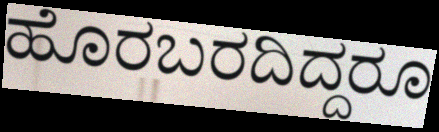
ಹೊರಬರದಿದ್ದರೂ